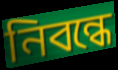
নিবন্ধে